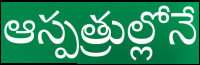
ఆస్పత్రుల్లోనే